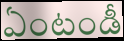
ఏంటండీ